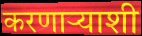
करणाऱ्याशी